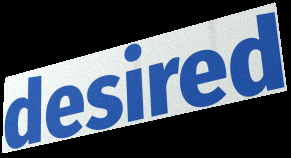
desired